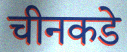
चीनकडे